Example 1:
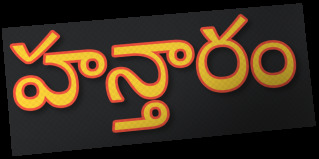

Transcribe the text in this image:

హన్తారం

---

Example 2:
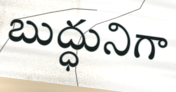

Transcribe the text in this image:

బుద్ధునిగా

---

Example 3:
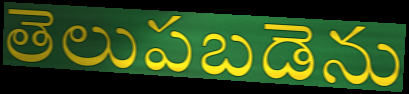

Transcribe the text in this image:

తెలుపబడెను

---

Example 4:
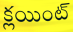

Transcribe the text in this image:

క్లయింట్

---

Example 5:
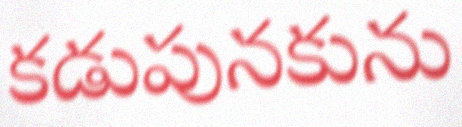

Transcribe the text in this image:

కడుపునకును